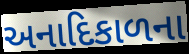
અનાદિકાળના